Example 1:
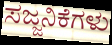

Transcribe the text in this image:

ಸಜ್ಜನಿಕೆಗಳು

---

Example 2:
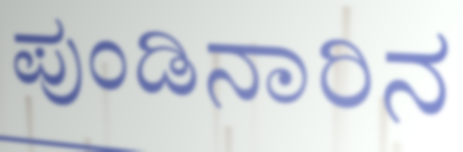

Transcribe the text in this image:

ಪುಂಡಿನಾರಿನ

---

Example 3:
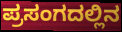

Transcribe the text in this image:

ಪ್ರಸಂಗದಲ್ಲಿನ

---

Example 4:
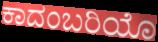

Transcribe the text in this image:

ಕಾದಂಬರಿಯೊ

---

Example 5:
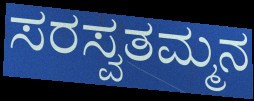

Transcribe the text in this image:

ಸರಸ್ವತಮ್ಮನ